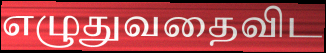
எழுதுவதைவிட